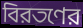
বিরতণের